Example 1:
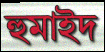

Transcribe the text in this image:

হুমাইদ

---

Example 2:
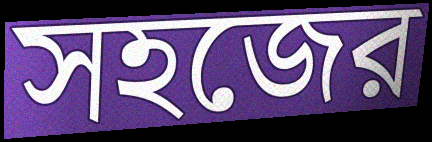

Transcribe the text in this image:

সহজের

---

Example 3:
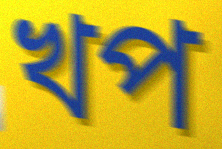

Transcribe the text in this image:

খপ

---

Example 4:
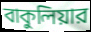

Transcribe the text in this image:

বাকুলিয়ার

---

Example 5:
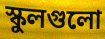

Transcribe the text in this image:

স্কুলগুলো